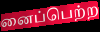
னைப்பெற்ற